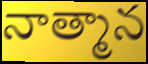
నాత్మాన